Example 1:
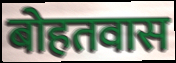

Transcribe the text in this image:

बोहतवास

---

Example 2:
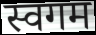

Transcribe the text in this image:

स्वगम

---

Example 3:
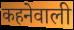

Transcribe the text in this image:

कहनेवाली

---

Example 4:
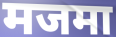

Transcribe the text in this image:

मजमा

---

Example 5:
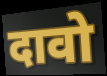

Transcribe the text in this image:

दावो